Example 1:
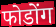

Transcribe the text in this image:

फोडोंग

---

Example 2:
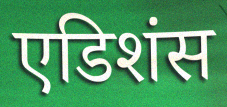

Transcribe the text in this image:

एडिशंस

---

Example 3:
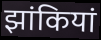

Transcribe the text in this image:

झांकियां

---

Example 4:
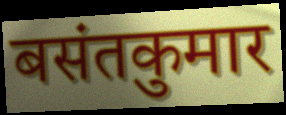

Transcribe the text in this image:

बसंतकुमार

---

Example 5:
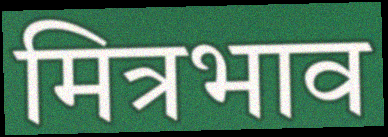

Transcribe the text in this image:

मित्रभाव